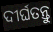
ଦୀର୍ଘତନ୍ତୁ